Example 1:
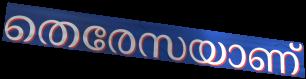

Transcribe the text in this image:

തെരേസയാണ്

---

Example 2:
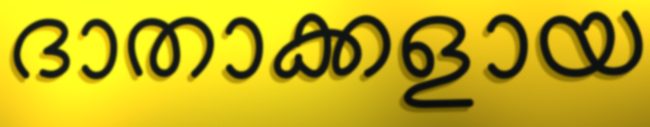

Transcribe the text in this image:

ദാതാക്കളായ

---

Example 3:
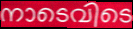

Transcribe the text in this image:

നാടെവിടെ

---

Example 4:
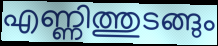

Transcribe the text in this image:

എണ്ണിത്തുടങ്ങും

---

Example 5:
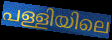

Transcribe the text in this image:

പള്ളിയിലെ